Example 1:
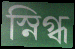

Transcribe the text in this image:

স্নিগ্ধ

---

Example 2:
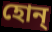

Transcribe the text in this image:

হোন্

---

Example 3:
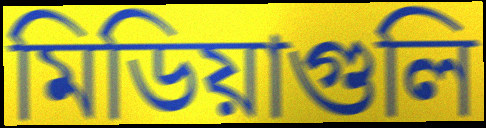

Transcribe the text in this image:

মিডিয়াগুলি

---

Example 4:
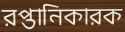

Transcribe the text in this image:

রপ্তানিকারক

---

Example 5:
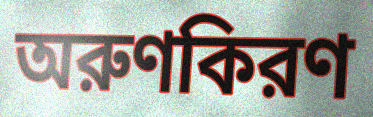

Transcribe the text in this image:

অরুণকিরণ